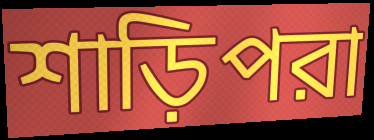
শাড়িপরা